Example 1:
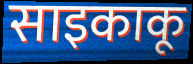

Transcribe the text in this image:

साइकाकू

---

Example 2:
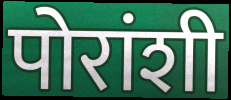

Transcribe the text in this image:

पोरांशी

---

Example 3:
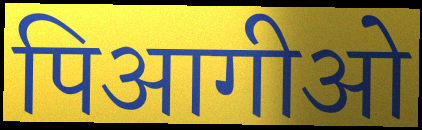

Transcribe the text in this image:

पिआगीओ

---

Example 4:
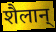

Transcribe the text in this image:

शैलान्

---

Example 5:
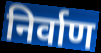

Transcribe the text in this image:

निर्वाण